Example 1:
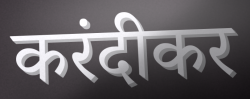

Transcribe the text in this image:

करंदीकर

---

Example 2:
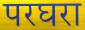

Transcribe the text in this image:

परघरा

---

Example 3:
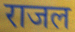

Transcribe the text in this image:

राजल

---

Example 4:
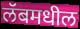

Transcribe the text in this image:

लॅबमधील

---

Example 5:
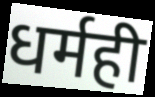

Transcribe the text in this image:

धर्मही